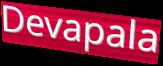
Devapala